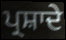
ਪ੍ਰਸ਼ਾਦੇ